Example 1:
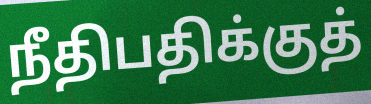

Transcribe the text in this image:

நீதிபதிக்குத்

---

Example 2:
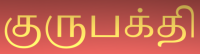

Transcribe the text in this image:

குருபக்தி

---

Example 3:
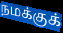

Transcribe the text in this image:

நமக்குக்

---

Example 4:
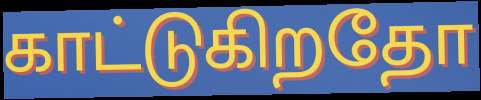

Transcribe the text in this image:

காட்டுகிறதோ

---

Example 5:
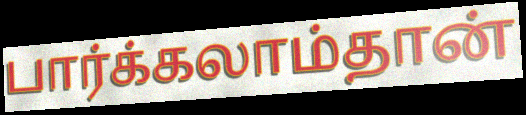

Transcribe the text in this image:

பார்க்கலாம்தான்